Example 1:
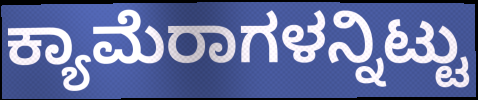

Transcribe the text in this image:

ಕ್ಯಾಮೆರಾಗಳನ್ನಿಟ್ಟು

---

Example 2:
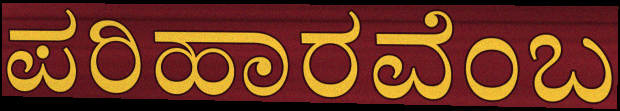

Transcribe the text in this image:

ಪರಿಹಾರವೆಂಬ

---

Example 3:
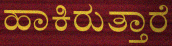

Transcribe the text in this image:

ಹಾಕಿರುತ್ತಾರೆ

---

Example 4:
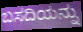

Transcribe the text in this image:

ಬಸದಿಯನ್ನು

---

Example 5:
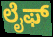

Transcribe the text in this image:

ಲೈಫ್